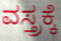
ವಸ್ತ್ರಕ್ಕೆ